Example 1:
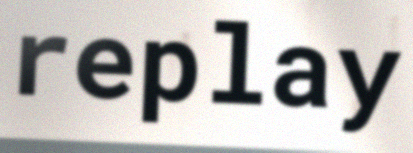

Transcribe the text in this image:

replay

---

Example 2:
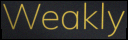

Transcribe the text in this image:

Weakly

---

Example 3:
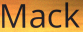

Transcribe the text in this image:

Mack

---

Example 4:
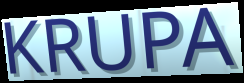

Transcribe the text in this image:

KRUPA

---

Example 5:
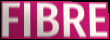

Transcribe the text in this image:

FIBRE